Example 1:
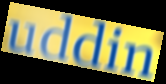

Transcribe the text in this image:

uddin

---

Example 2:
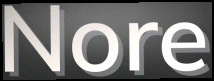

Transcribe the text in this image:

Nore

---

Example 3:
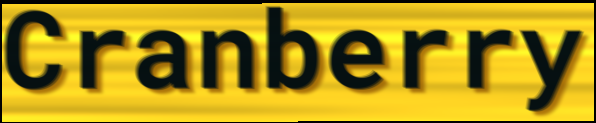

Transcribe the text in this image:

Cranberry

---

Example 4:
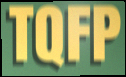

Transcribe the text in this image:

TQFP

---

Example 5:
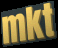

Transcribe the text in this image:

mkt